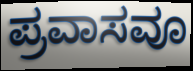
ಪ್ರವಾಸವೂ